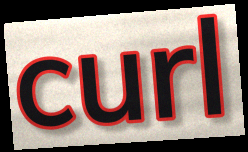
curl